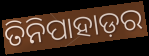
ତିନିପାହାଡ଼ର